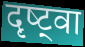
दृष्ट्‍वा